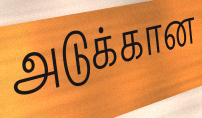
அடுக்கான